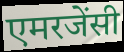
एमरजेंसी